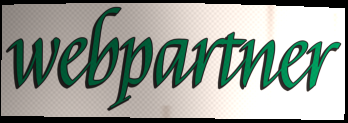
webpartner